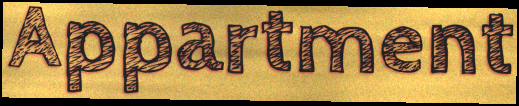
Appartment